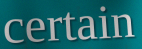
certain